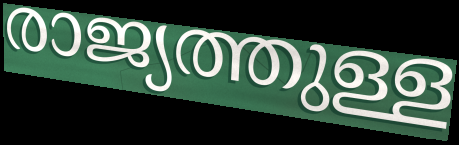
രാജ്യത്തുള്ള